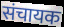
संचायक